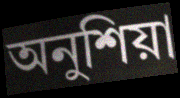
অনুশিয়া